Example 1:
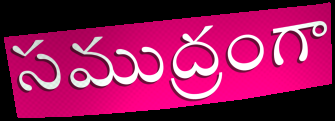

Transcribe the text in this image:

సముద్రంగా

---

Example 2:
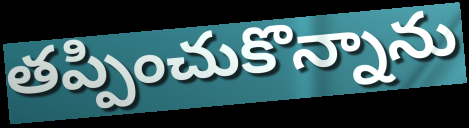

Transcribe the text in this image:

తప్పించుకొన్నాను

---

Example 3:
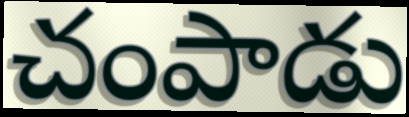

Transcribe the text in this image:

చంపాడు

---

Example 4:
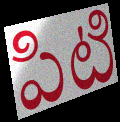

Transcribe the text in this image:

పిటి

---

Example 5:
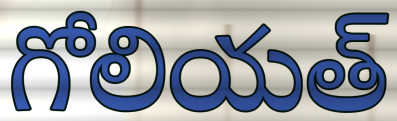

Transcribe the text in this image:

గోలియత్